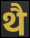
थै